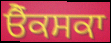
ਓੈਕਸਕਾ